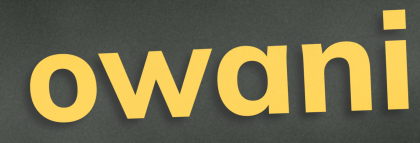
owani